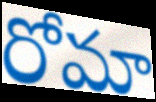
రోమా